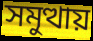
সমুত্থায়